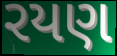
રયણ